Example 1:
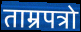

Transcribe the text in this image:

ताम्रपत्रो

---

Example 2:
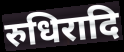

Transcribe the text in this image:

रुधिरादि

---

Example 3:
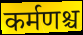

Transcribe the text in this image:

कर्मणश्च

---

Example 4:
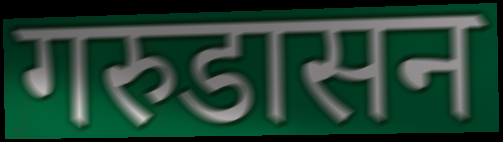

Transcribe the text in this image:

गरुडासन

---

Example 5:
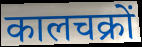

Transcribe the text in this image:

कालचक्रों